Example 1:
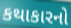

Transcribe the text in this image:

કથાકારનો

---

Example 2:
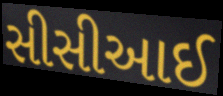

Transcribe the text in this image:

સીસીઆઈ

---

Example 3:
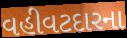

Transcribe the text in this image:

વહીવટદારના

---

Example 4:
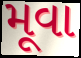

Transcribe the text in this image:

મૂવા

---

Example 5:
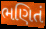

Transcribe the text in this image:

ભણિતં